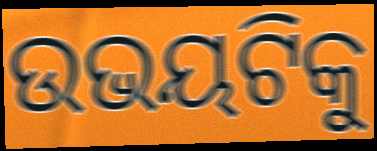
ଉଭୟଟିକୁ